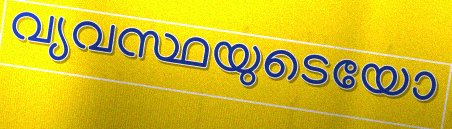
വ്യവസ്ഥയുടെയോ